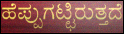
ಹೆಪ್ಪುಗಟ್ಟಿರುತ್ತದೆ